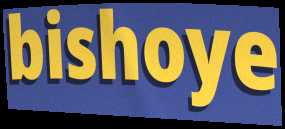
bishoye